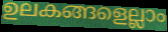
ഉലകങ്ങളെല്ലാം